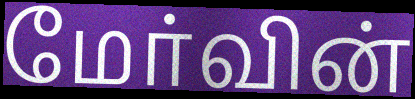
மேர்வின்